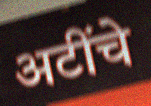
अटींचे